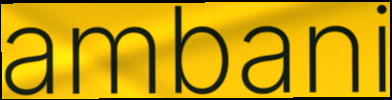
ambani